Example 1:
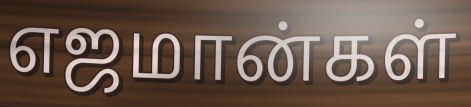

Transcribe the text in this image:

எஜமான்கள்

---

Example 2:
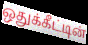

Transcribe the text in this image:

ஒதுக்கீட்டின்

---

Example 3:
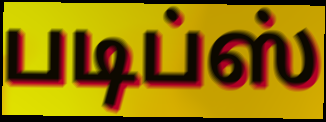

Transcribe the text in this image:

படிப்ஸ்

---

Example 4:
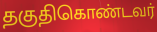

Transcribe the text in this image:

தகுதிகொண்டவர்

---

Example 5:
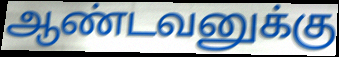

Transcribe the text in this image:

ஆண்டவனுக்கு